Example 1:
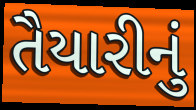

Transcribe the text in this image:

તૈયારીનું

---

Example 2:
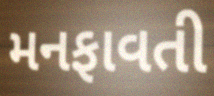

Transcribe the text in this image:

મનફાવતી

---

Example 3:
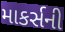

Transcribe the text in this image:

માકર્સની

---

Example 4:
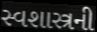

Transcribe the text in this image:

સ્વશાસ્ત્રની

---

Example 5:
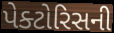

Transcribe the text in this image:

પેક્ટોરિસની